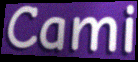
Cami